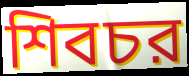
শিবচর